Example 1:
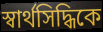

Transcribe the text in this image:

স্বার্থসিদ্ধিকে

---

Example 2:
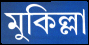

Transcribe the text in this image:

মুকিল্লা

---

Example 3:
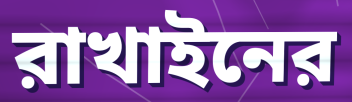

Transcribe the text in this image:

রাখাইনের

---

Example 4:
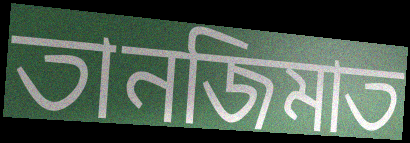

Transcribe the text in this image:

তানজিমাত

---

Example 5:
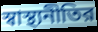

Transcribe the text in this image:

স্বাস্থ্যনীতির